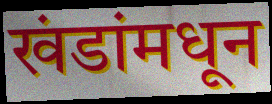
खंडांमधून